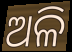
ଅଳି